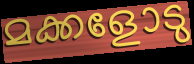
മക്കളോടു